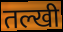
तल्‍खी